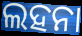
ଲହନା